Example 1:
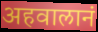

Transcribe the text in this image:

अहवालानं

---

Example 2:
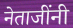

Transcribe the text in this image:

नेताजींनी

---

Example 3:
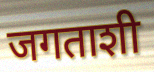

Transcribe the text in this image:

जगताशी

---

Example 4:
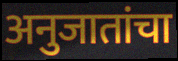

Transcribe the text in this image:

अनुजातांचा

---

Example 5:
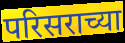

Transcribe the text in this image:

परिसराच्या